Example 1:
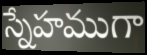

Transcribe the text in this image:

స్నేహముగా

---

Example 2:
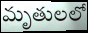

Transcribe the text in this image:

మృతులలో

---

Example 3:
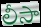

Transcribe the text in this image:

లీసా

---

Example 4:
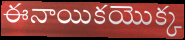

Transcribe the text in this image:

ఈనాయికయొక్క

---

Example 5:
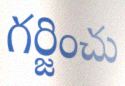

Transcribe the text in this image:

గర్జించు